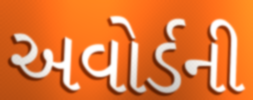
અવોર્ડની